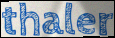
thaler